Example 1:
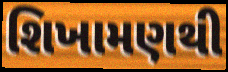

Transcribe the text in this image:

શિખામણથી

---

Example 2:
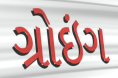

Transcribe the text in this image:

ગ્રોઇંગ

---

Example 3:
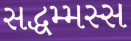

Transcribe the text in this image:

સદ્ધમ્મસ્સ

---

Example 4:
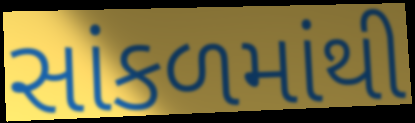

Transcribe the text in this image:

સાંકળમાંથી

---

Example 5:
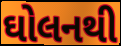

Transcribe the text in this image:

ઘોલનથી